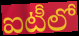
ఐటీలో